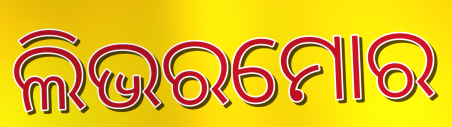
ଲିଭରମୋର